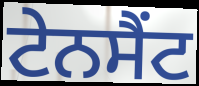
ਟੇਨਸੈਂਟ